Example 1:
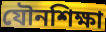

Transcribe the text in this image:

যৌনশিক্ষা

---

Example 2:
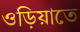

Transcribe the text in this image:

ওড়িয়াতে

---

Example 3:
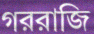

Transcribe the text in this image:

গররাজি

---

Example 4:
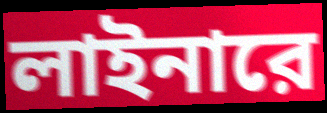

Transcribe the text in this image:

লাইনারে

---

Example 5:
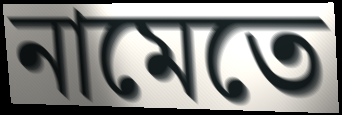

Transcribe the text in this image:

নামেতে